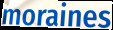
moraines